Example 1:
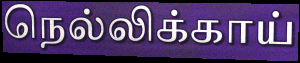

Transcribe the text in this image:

நெல்லிக்காய்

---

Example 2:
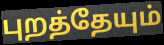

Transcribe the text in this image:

புறத்தேயும்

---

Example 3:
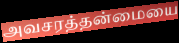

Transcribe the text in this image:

அவசரத்தன்மையை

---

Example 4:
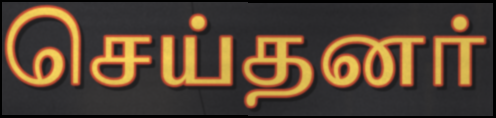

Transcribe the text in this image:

செய்தனர்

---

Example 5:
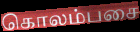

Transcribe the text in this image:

கொலம்பசை